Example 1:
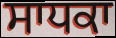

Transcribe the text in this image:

ਸਾਧਕਾ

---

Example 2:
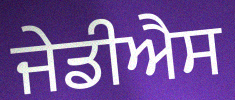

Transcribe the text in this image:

ਜੇਡੀਐਸ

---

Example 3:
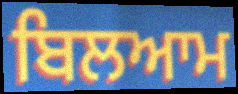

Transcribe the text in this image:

ਬਿਲਆਮ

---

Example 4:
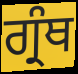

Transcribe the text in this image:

ਗ੍ਰੰਥ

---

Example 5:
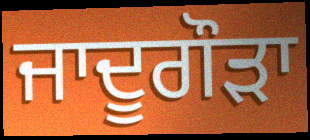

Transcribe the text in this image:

ਜਾਦੂਗੌੜਾ